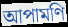
আপামণি